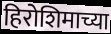
हिरोशिमाच्या